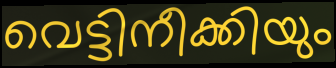
വെട്ടിനീക്കിയും